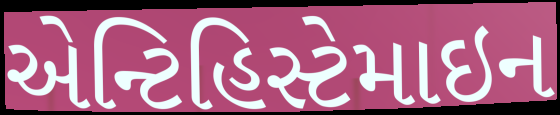
એન્ટિહિસ્ટેમાઇન